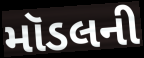
મૉડલની